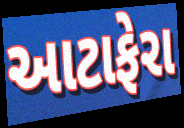
આટાફેરા